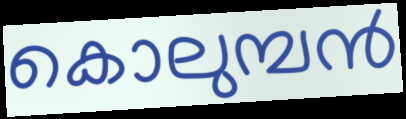
കൊലുമ്പൻ